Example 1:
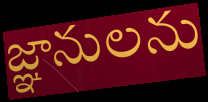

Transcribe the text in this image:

జ్ఞానులను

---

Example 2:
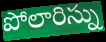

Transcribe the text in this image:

పోలారిస్ను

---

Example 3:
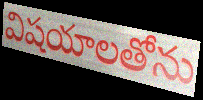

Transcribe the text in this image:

విషయాలతోను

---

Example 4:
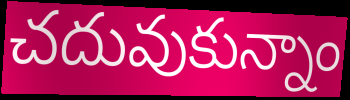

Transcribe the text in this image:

చదువుకున్నాం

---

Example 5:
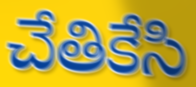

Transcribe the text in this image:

చేతికేసి